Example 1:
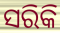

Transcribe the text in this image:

ସରିକି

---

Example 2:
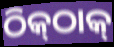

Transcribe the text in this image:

ଠିକ୍‌ଠାକ୍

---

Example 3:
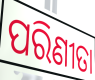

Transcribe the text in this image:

ପରିଣୀତା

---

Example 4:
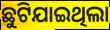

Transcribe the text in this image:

ଛୁଟିଯାଇଥିଲା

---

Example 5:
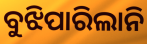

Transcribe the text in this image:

ବୁଝିପାରିଲାନି